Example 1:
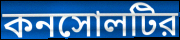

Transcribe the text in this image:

কনসোলটির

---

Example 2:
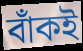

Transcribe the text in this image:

বাঁকই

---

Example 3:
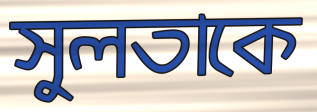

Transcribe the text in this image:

সুলতাকে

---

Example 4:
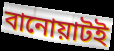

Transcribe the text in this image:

বানোয়াটই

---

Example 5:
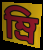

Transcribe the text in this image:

ম্রি